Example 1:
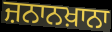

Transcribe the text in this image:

ਜ਼ਨਾਨਖ਼ਾਨਾ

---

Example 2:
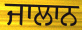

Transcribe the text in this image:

ਜਾਲਾਨ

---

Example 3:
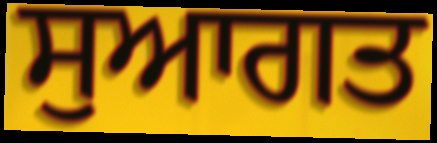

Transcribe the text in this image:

ਸੁਆਗਤ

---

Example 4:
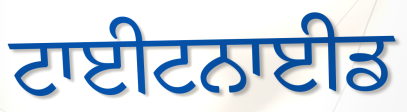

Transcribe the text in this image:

ਟਾਈਟਨਾਈਡ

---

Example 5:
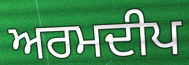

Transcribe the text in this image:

ਅਰਮਦੀਪ